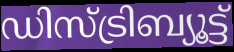
ഡിസ്ട്രിബ്യൂട്ട്